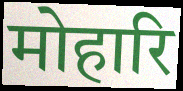
मोहारि